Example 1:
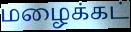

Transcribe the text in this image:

மழைக்கட்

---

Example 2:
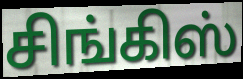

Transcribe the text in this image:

சிங்கிஸ்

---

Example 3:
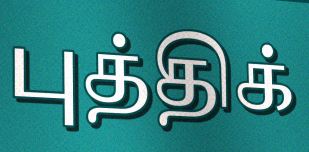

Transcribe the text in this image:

புத்திக்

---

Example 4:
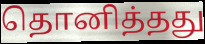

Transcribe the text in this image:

தொனித்தது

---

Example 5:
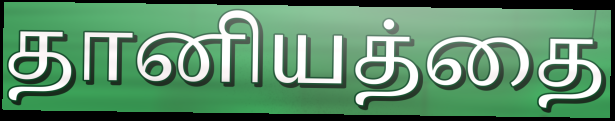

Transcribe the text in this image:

தானியத்தை